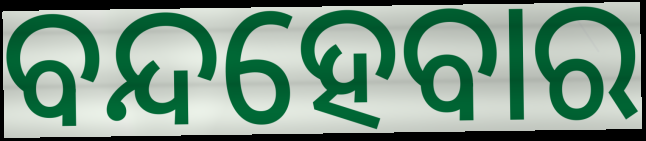
ବନ୍ଦହେବାର